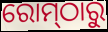
ରୋମ୍‌ଠାରୁ